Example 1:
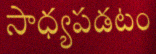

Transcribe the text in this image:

సాధ్యపడటం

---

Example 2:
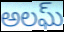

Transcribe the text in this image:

అలఘ్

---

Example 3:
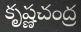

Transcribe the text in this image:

కృష్ణచంద్ర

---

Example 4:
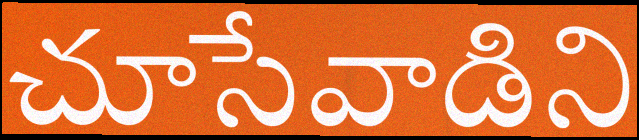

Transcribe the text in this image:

చూసేవాడిని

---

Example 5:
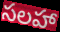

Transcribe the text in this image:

సలహా